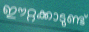
ഈറ്റക്കാടുണ്ട്